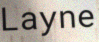
Layne